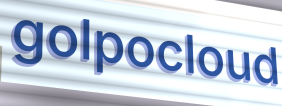
golpocloud